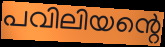
പവിലിയന്റെ